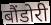
बौंडोरी